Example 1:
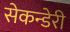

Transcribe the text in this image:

सेकन्डेरी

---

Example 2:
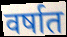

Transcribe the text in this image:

वर्षात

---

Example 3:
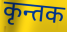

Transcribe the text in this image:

कृन्तक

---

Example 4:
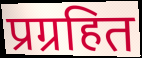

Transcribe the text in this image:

प्रग्रहित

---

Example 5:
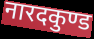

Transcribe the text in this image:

नारदकुण्ड